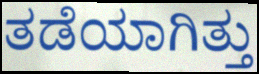
ತಡೆಯಾಗಿತ್ತು